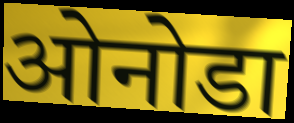
ओनोडा